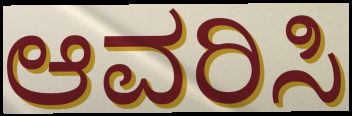
ಆವರಿಸಿ